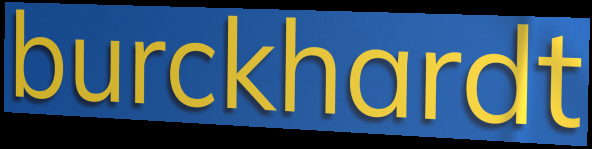
burckhardt